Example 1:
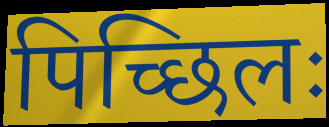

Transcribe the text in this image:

पिच्छिलः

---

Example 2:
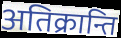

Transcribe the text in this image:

अतिक्रान्ति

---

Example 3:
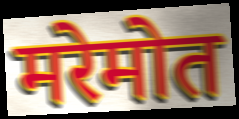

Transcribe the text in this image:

मरेमोत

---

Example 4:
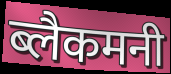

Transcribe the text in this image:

ब्‍लैकमनी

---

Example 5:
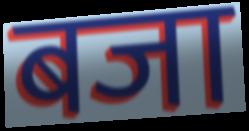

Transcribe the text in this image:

बजा